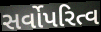
સર્વોપરિત્વ